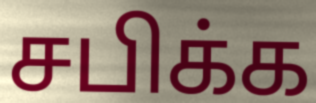
சபிக்க